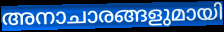
അനാചാരങ്ങളുമായി